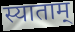
स्याताम्